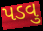
પડવુ